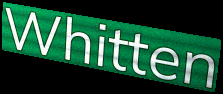
Whitten